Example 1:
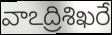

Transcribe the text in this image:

వాఽద్రిశిఖరే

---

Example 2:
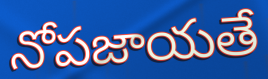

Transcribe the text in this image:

నోపజాయతే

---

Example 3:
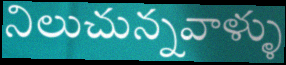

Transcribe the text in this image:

నిలుచున్నవాళ్ళు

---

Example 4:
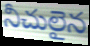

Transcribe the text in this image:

నీచులైన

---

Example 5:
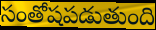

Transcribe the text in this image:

సంతోషపడుతుంది